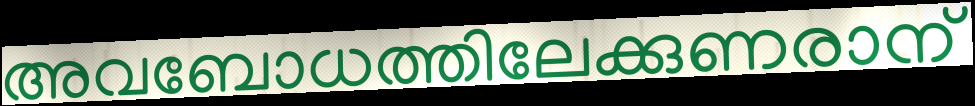
അവബോധത്തിലേക്കുണരാന്